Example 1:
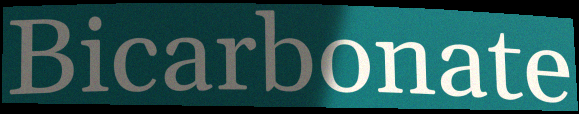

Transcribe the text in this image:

Bicarbonate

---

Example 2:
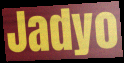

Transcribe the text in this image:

Jadyo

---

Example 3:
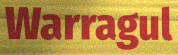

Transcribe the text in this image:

Warragul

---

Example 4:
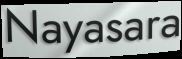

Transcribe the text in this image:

Nayasara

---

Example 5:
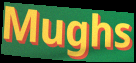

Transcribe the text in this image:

Mughs